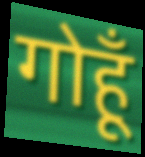
गोहूँ